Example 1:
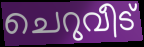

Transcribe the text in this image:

ചെറുവീട്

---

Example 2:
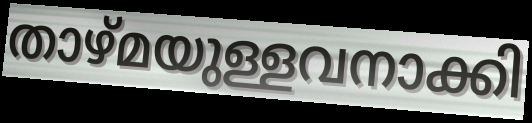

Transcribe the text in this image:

താഴ്മയുള്ളവനാക്കി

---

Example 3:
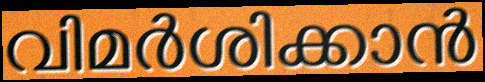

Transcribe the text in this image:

വിമർശിക്കാൻ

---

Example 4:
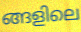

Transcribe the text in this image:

ങ്ങളിലെ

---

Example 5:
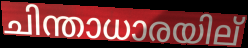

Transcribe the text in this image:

ചിന്താധാരയില്